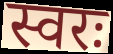
स्वरः